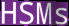
HSMs